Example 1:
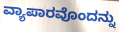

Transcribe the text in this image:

ವ್ಯಾಪಾರವೊಂದನ್ನು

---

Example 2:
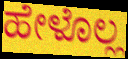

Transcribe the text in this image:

ಹೇಳೊಲ್ಲ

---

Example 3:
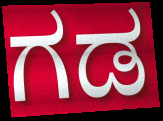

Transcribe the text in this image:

ಗಡ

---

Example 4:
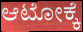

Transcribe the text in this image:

ಆಟೋಕ್ಕೆ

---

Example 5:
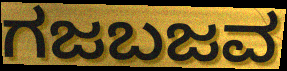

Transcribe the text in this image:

ಗಜಬಜವ